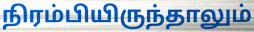
நிரம்பியிருந்தாலும்